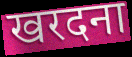
खरदना